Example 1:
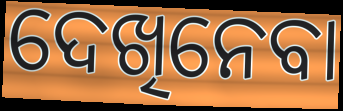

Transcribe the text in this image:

ଦେଖିନେବା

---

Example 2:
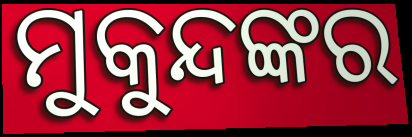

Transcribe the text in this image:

ମୁକୁନ୍ଦଙ୍କର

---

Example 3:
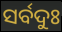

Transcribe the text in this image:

ସର୍ବଦୁଃ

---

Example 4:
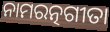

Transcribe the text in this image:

ନାମରତ୍ନଗୀତା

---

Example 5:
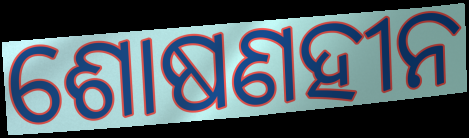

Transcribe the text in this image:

ଶୋଷଣହୀନ